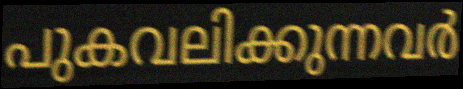
പുകവലിക്കുന്നവർ